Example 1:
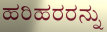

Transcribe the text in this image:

ಹರಿಹರರನ್ನು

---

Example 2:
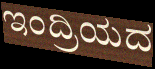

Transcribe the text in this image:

ಇಂದ್ರಿಯದ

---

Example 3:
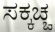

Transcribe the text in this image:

ಸಕ್ಕಚ್ಚ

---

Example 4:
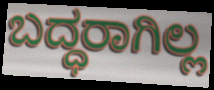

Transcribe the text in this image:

ಬದ್ಧರಾಗಿಲ್ಲ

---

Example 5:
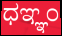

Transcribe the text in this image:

ಧಞ್ಞಂ